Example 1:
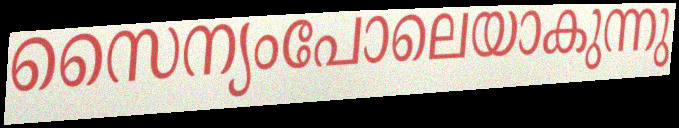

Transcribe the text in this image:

സൈന്യംപോലെയാകുന്നു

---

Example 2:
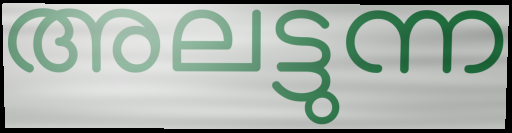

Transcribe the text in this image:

അലട്ടുന്ന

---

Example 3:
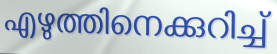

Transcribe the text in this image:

എഴുത്തിനെക്കുറിച്ച്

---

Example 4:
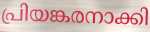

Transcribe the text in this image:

പ്രിയങ്കരനാക്കി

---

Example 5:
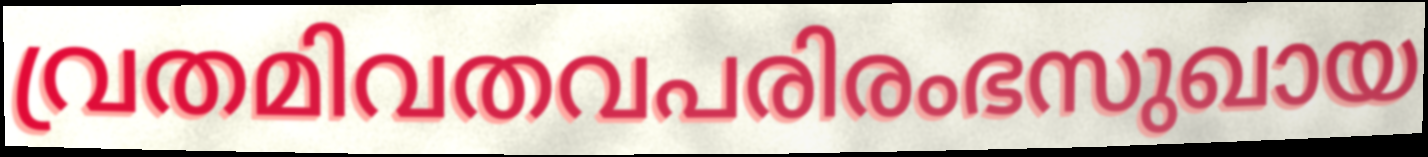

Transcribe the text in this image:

വ്രതമിവതവപരിരംഭസുഖായ